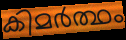
കിമർത്ഥം